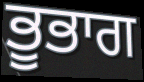
ਭੂਭਾਗ